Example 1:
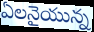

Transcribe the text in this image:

ఏలనైయున్న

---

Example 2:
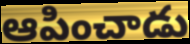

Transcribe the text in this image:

ఆపించాడు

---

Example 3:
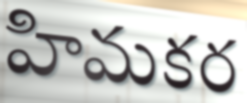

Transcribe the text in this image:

హిమకర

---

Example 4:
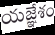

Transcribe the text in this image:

యజ్ఞేశం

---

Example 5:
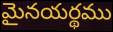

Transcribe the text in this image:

మైనయర్థము